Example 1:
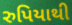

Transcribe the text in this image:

રુપિયાથી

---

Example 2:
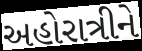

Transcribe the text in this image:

અહોરાત્રીને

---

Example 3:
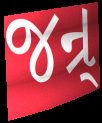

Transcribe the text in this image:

જન્ર્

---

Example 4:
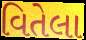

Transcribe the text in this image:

વિતેલા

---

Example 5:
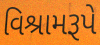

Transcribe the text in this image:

વિશ્રામરૂપે